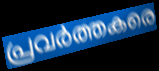
പ്രവർത്തകരെ